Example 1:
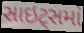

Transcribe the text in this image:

સાઇટ્સમાં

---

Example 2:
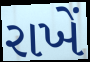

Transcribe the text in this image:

રાખેં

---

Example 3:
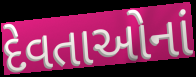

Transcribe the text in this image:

દેવતાઓનાં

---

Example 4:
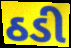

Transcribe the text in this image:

ઠડી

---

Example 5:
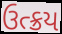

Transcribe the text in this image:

ઉત્ક્રય